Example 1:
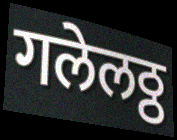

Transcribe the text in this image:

गलेलठ्ठ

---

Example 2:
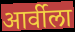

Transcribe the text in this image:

आर्वीला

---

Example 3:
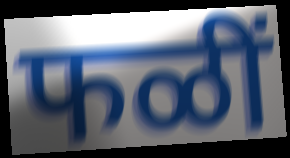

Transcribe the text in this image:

फळीं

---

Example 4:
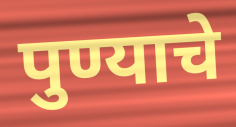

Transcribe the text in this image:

पुण्याचे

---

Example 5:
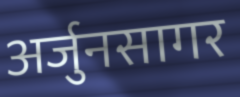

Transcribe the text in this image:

अर्जुनसागर